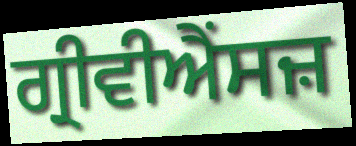
ਗ੍ਰੀਵੀਐਂਸਜ਼